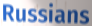
Russians